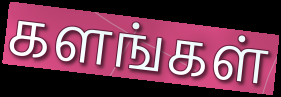
களங்கள்